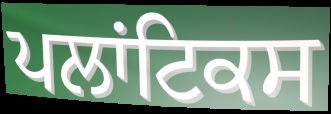
ਪਲਾਂਟਿਕਸ